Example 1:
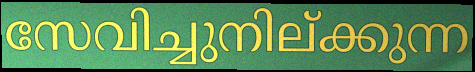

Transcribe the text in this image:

സേവിച്ചുനില്ക്കുന്ന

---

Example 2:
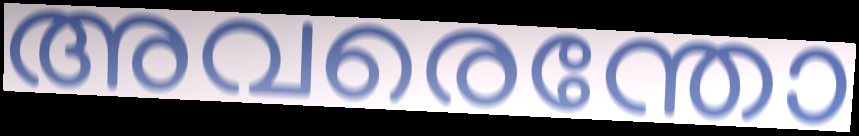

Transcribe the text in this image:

അവരെന്തോ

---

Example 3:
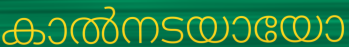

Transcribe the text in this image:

കാൽനടയായോ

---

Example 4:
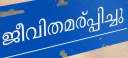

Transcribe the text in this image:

ജീവിതമര്പ്പിച്ചു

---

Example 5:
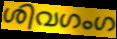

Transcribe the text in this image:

ശിവഗംഗ